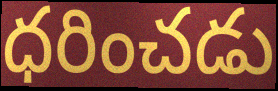
ధరించడు